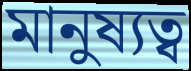
মানুষ্যত্ব